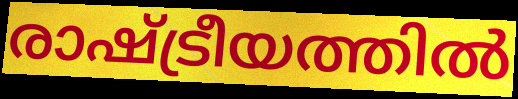
രാഷ്ട്രീയത്തിൽ